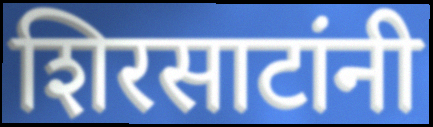
शिरसाटांनी